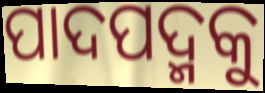
ପାଦପଦ୍ମକୁ